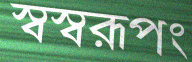
স্বস্বরূপং